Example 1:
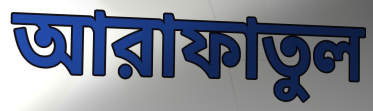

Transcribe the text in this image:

আরাফাতুল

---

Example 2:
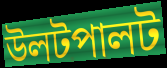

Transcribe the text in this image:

উলটপালট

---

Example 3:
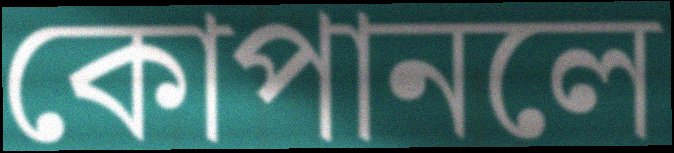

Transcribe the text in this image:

কোপানলে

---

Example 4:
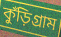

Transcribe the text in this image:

কুঁড়িগ্রাম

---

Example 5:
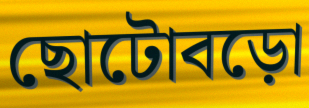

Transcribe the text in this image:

ছোটোবড়ো